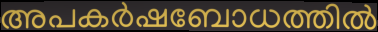
അപകർഷബോധത്തിൽ